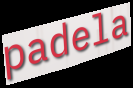
padela